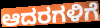
ಆದರಗಳಿಗೆ